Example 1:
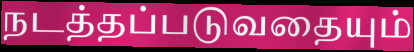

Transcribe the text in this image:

நடத்தப்படுவதையும்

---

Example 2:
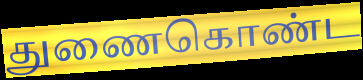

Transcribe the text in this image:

துணைகொண்ட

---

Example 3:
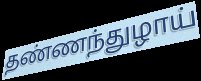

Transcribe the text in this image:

தண்ணந்துழாய்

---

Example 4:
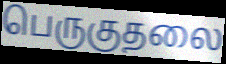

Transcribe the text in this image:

பெருகுதலை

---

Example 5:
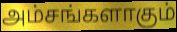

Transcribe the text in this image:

அம்சங்களாகும்